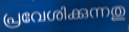
പ്രവേശിക്കുന്നതു